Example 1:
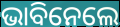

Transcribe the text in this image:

ଭାବିନେଲେ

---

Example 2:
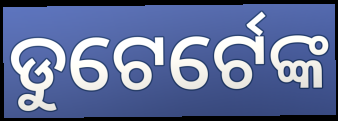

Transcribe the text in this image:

ଡୁଟେର୍ଟେଙ୍କ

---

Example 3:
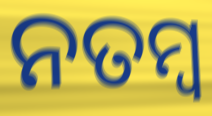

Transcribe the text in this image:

ନତମ୍ବ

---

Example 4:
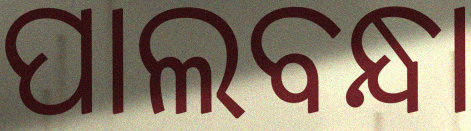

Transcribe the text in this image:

ପାଲବନ୍ଧା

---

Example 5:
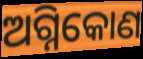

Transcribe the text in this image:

ଅଗ୍ନିକୋଣ